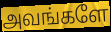
அவங்களே